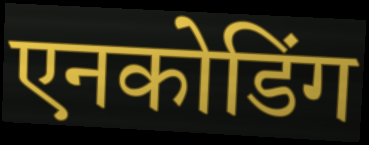
एनकोडिंग